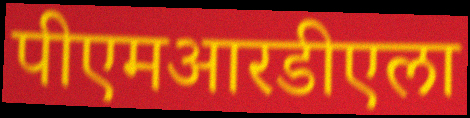
पीएमआरडीएला